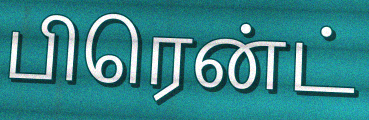
பிரென்ட்